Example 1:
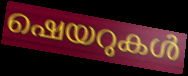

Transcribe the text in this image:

ഷെയറുകൾ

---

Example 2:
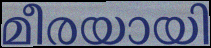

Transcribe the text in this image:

മീരയായി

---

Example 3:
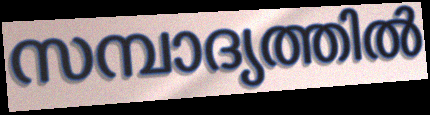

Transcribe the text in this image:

സമ്പാദ്യത്തിൽ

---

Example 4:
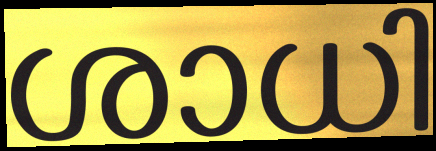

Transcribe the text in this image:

ശാധി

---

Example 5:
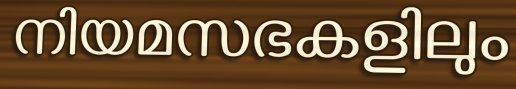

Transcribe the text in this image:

നിയമസഭകളിലും